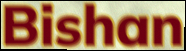
Bishan